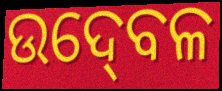
ଉଦ୍‍ବେଳ